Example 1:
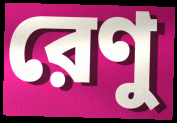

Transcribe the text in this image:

রেণু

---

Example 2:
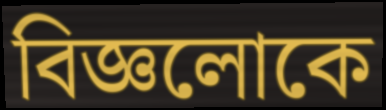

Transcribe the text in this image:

বিজ্ঞলোকে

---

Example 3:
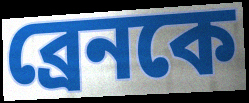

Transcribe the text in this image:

ব্রেনকে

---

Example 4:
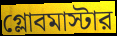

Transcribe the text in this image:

গ্লোবমাস্টার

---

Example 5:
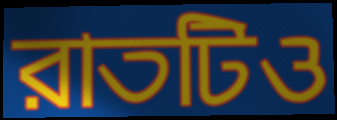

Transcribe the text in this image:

রাতটিও